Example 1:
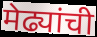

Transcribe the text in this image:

मेढ्यांची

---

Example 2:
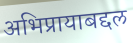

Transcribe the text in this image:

अभिप्रायाबद्दल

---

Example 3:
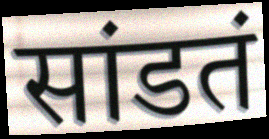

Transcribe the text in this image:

सांडतं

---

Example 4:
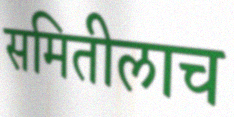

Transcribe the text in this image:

समितीलाच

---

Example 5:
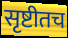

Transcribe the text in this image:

सृष्टीतच